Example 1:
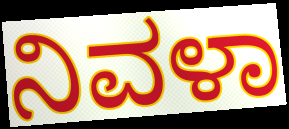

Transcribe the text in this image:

ನಿವಳಾ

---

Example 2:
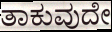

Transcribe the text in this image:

ತಾಕುವುದೇ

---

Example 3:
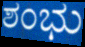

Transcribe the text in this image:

ಶಂಭು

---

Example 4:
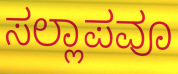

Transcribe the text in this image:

ಸಲ್ಲಾಪವೂ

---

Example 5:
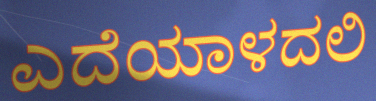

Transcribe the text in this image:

ಎದೆಯಾಳದಲಿ